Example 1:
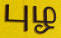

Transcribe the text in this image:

புழ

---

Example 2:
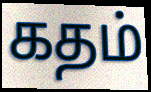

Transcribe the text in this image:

கதம்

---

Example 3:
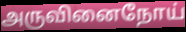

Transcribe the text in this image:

அருவினைநோய்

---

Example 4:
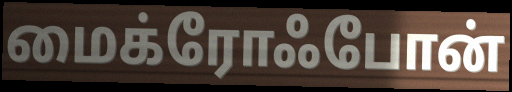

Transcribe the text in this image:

மைக்ரோஃபோன்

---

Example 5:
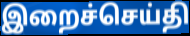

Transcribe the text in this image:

இறைச்செய்தி